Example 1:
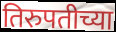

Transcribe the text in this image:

तिरुपतीच्या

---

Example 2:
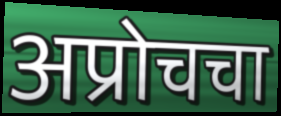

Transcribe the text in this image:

अप्रोचचा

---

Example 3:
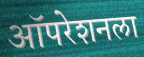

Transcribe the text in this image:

ऑपरेशनला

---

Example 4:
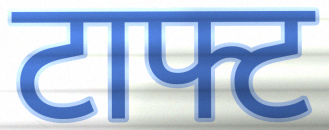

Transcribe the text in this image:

टाफ्ट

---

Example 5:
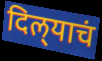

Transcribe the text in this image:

दिल्याचं